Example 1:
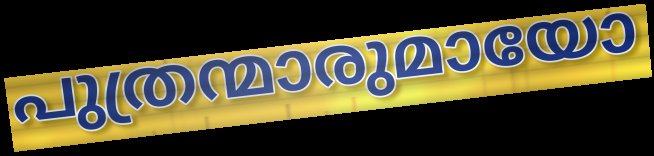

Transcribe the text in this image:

പുത്രന്മാരുമായോ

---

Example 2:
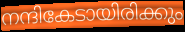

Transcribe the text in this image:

നന്ദികേടായിരിക്കും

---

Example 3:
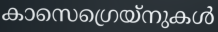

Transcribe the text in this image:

കാസെഗ്രെയ്നുകൾ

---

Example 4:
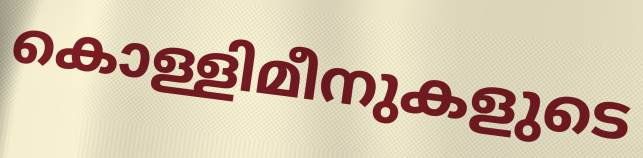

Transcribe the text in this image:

കൊള്ളിമീനുകളുടെ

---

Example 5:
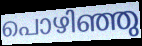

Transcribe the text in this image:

പൊഴിഞ്ഞു